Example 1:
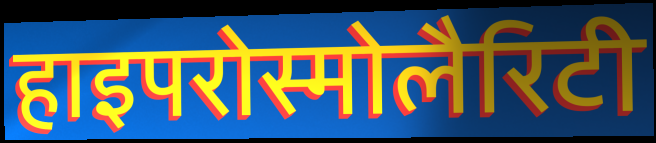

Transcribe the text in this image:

हाइपरोस्मोलैरिटी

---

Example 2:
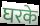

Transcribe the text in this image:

घरके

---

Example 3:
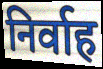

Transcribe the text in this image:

निर्वाह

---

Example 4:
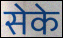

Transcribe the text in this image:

सेके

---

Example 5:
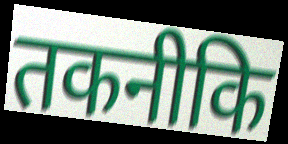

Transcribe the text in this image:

तकनीकि